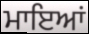
ਮਾਇਆਂ